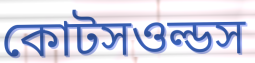
কোটসওল্ডস